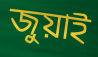
জুয়াই